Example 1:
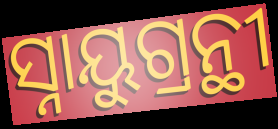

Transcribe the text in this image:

ସ୍ନାୟୁଗ୍ରନ୍ଥୀ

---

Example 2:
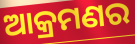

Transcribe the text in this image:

ଆକ୍ରମଣର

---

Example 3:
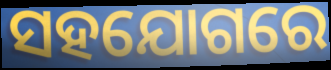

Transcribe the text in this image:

ସହଯୋଗରେ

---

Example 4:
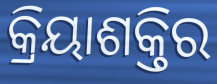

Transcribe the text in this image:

କ୍ରିୟାଶକ୍ତିର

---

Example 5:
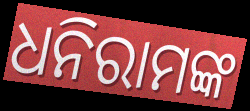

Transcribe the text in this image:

ଧନିରାମଙ୍କ